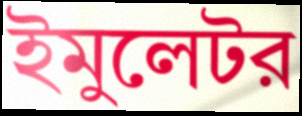
ইমুলেটর